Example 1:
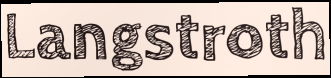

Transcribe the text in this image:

Langstroth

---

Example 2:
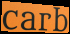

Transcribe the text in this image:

carb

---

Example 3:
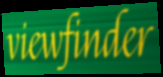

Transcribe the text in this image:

viewfinder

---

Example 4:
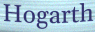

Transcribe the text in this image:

Hogarth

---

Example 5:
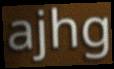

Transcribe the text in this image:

ajhg